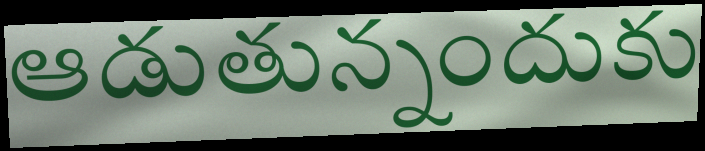
ఆడుతున్నందుకు